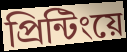
প্রিন্টিংয়ে